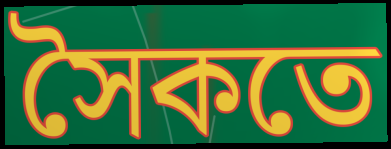
সৈকতে